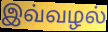
இவ்வழல்